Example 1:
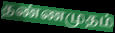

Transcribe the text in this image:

தண்ணமுதம்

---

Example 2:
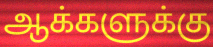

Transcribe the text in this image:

ஆக்களுக்கு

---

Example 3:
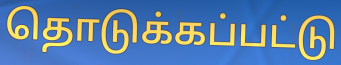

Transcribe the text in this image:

தொடுக்கப்பட்டு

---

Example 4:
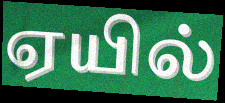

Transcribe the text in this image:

ஏயில்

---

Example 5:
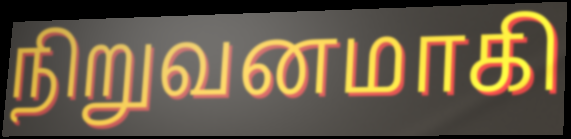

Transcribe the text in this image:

நிறுவனமாகி